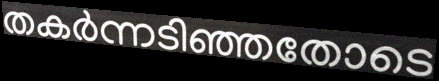
തകർന്നടിഞ്ഞതോടെ